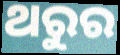
ଥରୁର